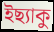
ইছ্যাকু